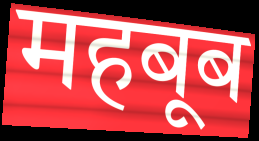
महबूब